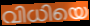
വിധിയെ